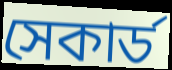
সেকার্ড